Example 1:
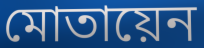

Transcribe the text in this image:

মোতায়েন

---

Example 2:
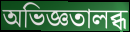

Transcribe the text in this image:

অভিজ্ঞতালব্ধ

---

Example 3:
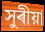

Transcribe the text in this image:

সুৰীয়া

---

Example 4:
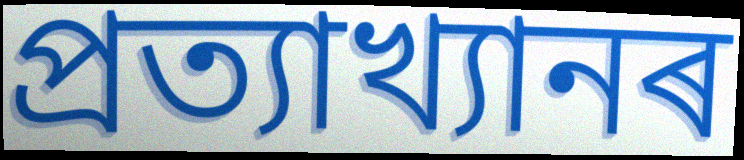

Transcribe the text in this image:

প্ৰত্যাখ্যানৰ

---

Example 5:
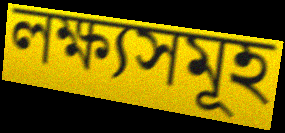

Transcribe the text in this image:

লক্ষ্যসমূহ